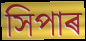
সিপাৰ